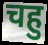
चहु